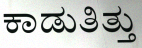
ಕಾಡುತಿತ್ತು